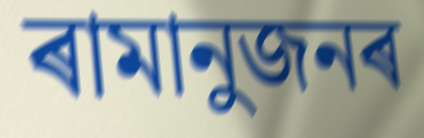
ৰামানুজনৰ